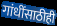
गांधींसाठीही